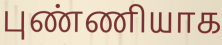
புண்ணியாக